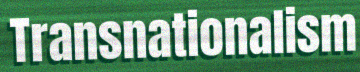
Transnationalism